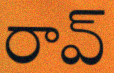
రావ్